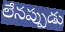
లేనప్పుడు